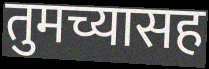
तुमच्यासह